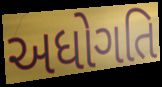
અધોગતિ